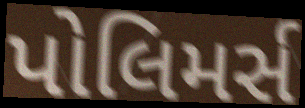
પોલિમર્સ